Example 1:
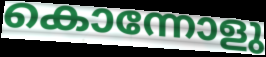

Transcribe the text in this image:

കൊന്നോളു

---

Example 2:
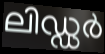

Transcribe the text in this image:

ലിഡ്ഡർ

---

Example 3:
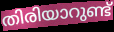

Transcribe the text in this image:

തിരിയാറുണ്ട്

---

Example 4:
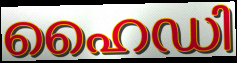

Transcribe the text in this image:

ഹൈഡി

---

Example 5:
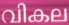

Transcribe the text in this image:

വികല